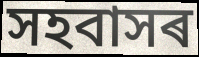
সহবাসৰ